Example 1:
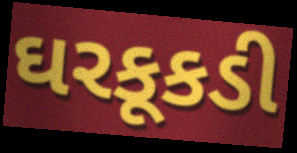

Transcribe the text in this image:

ઘરકૂકડી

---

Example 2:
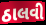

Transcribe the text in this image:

ઠાલવી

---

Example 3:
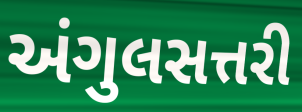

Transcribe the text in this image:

અંગુલસત્તરી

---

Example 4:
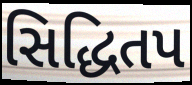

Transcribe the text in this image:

સિદ્ધિતપ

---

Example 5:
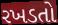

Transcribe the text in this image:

રખડતો